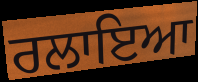
ਰਲਾਇਆ